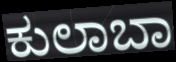
ಕುಲಾಬಾ